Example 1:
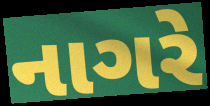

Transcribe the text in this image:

નાગરે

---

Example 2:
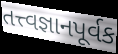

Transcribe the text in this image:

તત્ત્વજ્ઞાનપૂર્વક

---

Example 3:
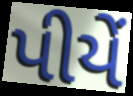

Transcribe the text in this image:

પીયેં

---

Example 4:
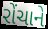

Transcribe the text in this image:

રોંચાને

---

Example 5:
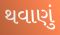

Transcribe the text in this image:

થવાણું